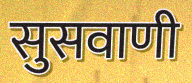
सुसवाणी